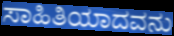
ಸಾಹಿತಿಯಾದವನು